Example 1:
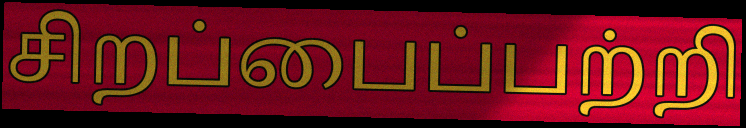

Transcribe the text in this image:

சிறப்பைப்பற்றி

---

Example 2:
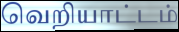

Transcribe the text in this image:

வெறியாட்டம்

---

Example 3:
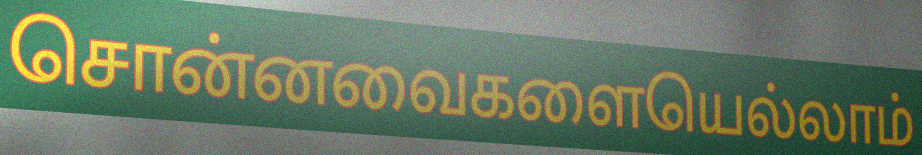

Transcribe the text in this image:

சொன்னவைகளையெல்லாம்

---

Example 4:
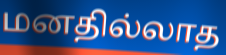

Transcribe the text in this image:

மனதில்லாத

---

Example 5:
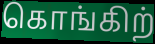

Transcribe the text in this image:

கொங்கிற்